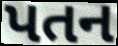
પતન